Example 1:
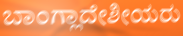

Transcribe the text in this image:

ಬಾಂಗ್ಲಾದೇಶೀಯರು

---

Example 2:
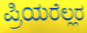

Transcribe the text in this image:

ಪ್ರಿಯರೆಲ್ಲರ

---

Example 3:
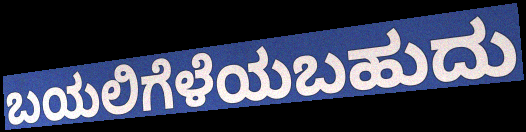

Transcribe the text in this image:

ಬಯಲಿಗೆಳೆಯಬಹುದು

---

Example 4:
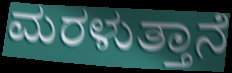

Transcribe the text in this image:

ಮರಳುತ್ತಾನೆ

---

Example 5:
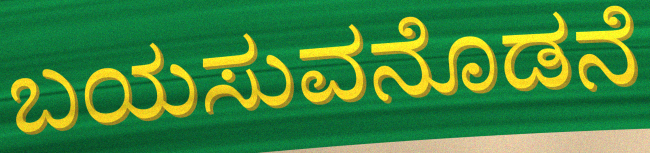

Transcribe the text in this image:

ಬಯಸುವನೊಡನೆ